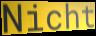
Nicht